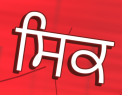
ਸਿਕ